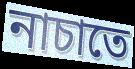
নাচাতে